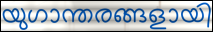
യുഗാന്തരങ്ങളായി